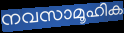
നവസാമൂഹിക